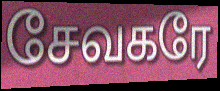
சேவகரே